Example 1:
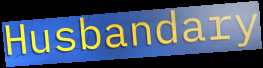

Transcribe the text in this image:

Husbandary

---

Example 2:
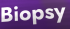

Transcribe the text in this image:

Biopsy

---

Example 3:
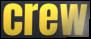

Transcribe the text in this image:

crew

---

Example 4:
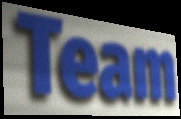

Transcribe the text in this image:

Team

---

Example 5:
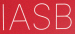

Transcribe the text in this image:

IASB